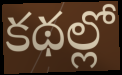
కథల్లో